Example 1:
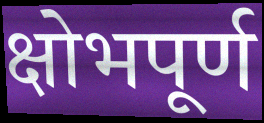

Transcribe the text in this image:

क्षोभपूर्ण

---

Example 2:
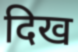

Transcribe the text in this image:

दिख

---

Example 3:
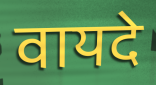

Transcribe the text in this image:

वायदे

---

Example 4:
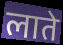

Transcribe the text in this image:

लाते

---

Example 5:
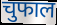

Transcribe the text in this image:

चुफाल